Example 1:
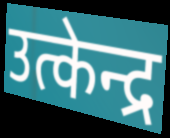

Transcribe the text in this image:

उत्केन्द्र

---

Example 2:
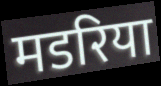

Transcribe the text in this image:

मडरिया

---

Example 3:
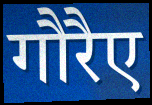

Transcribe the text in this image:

गौरैए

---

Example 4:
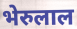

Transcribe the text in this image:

भेरुलाल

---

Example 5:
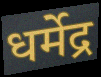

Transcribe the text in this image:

धर्मेद्र